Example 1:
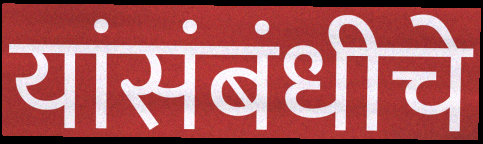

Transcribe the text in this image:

यांसंबंधीचे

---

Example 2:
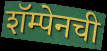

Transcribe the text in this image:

शॅम्पेनची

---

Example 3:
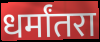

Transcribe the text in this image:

धर्मांतरा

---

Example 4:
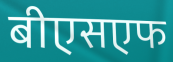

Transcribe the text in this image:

बीएसएफ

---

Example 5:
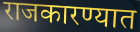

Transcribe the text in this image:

राजकारण्यात